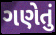
ગણેતું